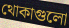
থোকাগুলো